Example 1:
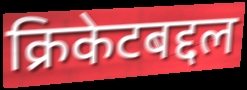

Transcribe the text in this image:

क्रिकेटबद्दल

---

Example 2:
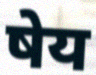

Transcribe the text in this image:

षेय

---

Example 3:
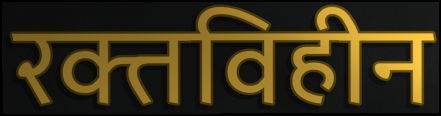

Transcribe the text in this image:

रक्तविहीन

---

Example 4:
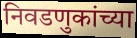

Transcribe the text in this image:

निवडणुकांच्या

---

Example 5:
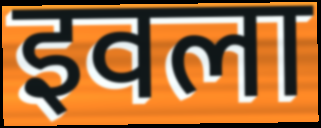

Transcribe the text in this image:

इवला